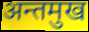
अन्तमुख